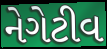
નેગેટીવ